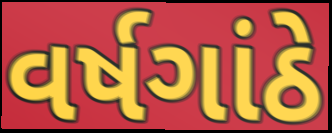
વર્ષગાંઠે